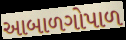
આબાળગોપાળ